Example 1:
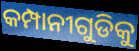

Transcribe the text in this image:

କମ୍ପାନୀଗୁଡିକୁ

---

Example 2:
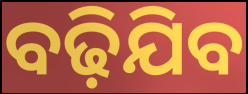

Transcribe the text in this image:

ବଢ଼ିଯିବ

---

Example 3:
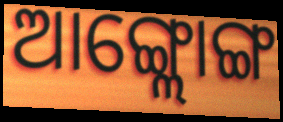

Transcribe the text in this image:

ଆଙ୍ଗ୍ଲୋଙ୍ଗ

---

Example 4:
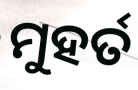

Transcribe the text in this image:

ମୁହର୍ତ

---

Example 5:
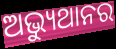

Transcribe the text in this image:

ଅଭ୍ୟୁଥାନର